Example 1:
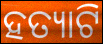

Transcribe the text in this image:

ହତ୍ୟାଟି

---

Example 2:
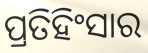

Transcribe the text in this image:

ପ୍ରତିହିଂସାର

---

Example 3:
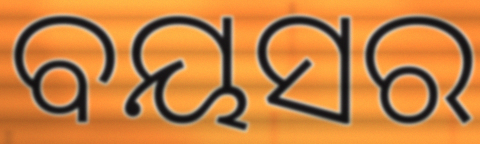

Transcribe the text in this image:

ବୟସର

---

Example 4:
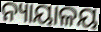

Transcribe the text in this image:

ନ୍ୟାୟାଳୟ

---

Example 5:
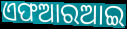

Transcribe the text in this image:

ଏଫଆରଆଇ